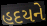
હદયને